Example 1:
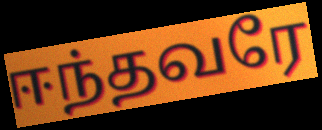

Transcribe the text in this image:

ஈந்தவரே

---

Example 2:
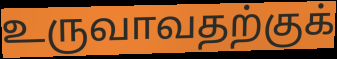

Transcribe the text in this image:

உருவாவதற்குக்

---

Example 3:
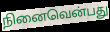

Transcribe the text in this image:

நினைவென்பது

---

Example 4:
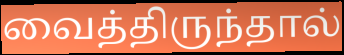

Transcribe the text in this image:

வைத்திருந்தால்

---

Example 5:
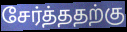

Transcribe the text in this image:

சேர்த்ததற்கு